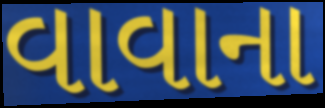
વાવાના